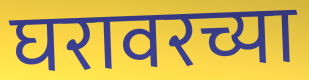
घरावरच्या